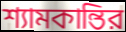
শ্যামকান্তির